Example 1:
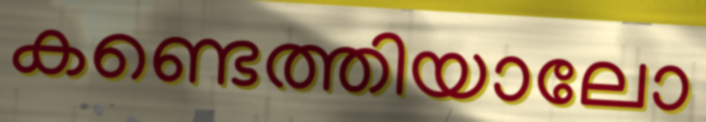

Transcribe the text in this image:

കണ്ടെത്തിയാലോ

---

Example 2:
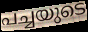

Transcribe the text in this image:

പച്ചയുടെ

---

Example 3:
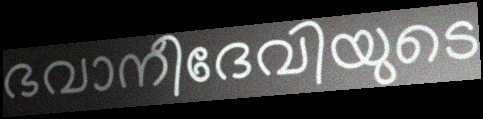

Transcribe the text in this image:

ഭവാനീദേവിയുടെ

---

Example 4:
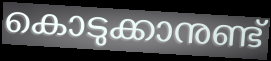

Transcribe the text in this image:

കൊടുക്കാനുണ്ട്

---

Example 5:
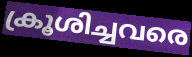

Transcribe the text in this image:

ക്രൂശിച്ചവരെ